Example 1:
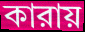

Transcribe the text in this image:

কারায়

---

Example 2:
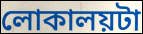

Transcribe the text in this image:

লোকালয়টা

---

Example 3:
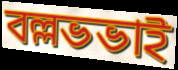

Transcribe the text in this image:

বল্লভভাই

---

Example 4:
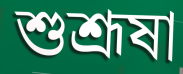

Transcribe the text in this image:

শুশ্রূষা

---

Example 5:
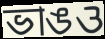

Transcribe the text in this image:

ভাঙও